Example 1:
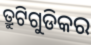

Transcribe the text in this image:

ତ୍ରୁଟିଗୁଡିକର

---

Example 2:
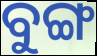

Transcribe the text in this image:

ବୁଙ୍ଗ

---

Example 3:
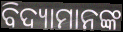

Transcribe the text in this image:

ବିଦ୍ୟାମାନଙ୍କ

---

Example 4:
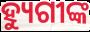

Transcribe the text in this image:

ହ୍ୟୁଗୀଙ୍କ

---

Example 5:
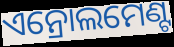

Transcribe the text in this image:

ଏନ୍ରୋଲମେଣ୍ଟ